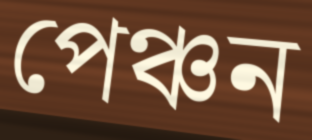
পেঞ্চন